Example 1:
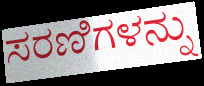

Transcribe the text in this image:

ಸರಣಿಗಳನ್ನು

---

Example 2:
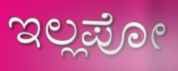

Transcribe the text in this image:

ಇಲ್ಲಪೋ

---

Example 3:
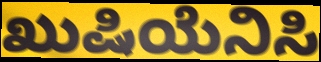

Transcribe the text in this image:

ಖುಷಿಯೆನಿಸಿ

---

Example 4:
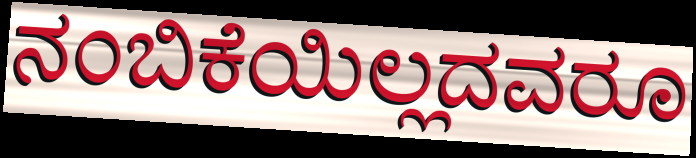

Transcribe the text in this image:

ನಂಬಿಕೆಯಿಲ್ಲದವರೂ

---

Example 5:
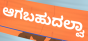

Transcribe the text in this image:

ಆಗಬಹುದಲ್ವಾ